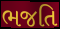
ભજતિ